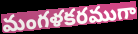
మంగళకరముగా